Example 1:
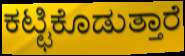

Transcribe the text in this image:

ಕಟ್ಟಿಕೊಡುತ್ತಾರೆ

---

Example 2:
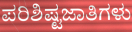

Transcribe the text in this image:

ಪರಿಶಿಷ್ಟಜಾತಿಗಳು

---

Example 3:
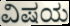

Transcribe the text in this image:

ವಿಷಯ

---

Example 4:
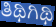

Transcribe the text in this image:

ತಿಥಿಗಿಥಿ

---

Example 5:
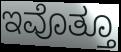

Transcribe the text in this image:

ಇವೊತ್ತೂ